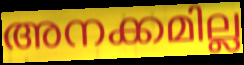
അനക്കമില്ല